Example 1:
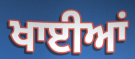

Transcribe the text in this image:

ਖਾਈਆਂ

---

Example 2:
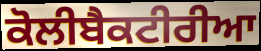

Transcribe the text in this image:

ਕੋਲੀਬੈਕਟੀਰੀਆ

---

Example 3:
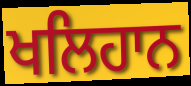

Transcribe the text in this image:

ਖਲਿਹਾਨ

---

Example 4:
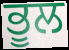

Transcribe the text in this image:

ਭੂਲ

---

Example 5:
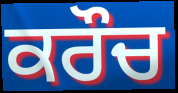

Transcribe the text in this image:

ਕਰੌਚ